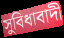
সুবিধাবাদী